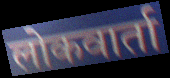
लोकवार्ता